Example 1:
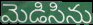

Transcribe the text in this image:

మెడిసిను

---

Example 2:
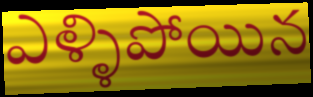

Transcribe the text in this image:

ఎళ్ళిపోయిన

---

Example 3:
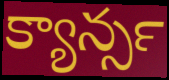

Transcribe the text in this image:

క్యాన్సర్‍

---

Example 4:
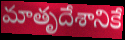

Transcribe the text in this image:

మాతృదేశానికే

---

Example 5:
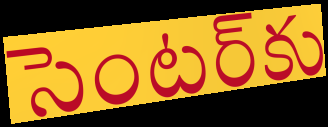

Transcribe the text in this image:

సెంటర్‌కు